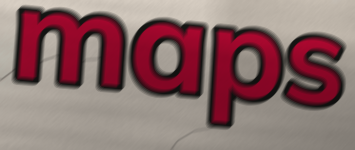
maps